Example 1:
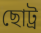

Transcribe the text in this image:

ছোট্র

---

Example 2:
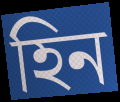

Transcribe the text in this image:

হিন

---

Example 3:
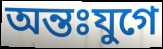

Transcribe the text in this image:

অন্তঃযুগে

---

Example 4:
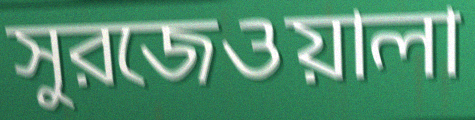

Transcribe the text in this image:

সুরজেওয়ালা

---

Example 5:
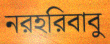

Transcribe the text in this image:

নরহরিবাবু